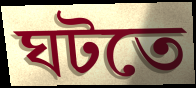
ঘটতে